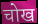
चोख